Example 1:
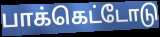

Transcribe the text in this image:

பாக்கெட்டோடு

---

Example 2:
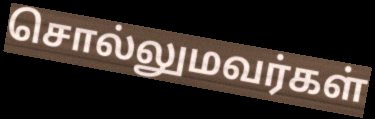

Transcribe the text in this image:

சொல்லுமவர்கள்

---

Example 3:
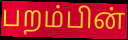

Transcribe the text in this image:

பறம்பின்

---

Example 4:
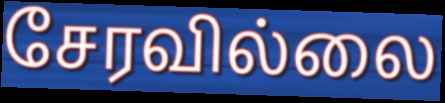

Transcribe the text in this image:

சேரவில்லை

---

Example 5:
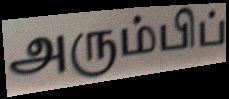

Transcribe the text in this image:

அரும்பிப்